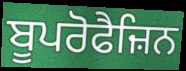
ਬੂਪਰੋਫੈਜ਼ਿਨ